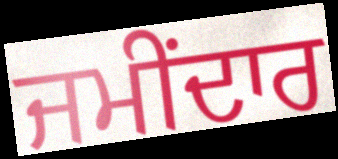
ਜਮੀਂਦਾਰ